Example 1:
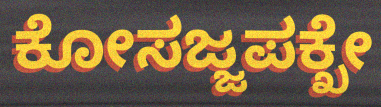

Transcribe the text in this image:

ಕೋಸಜ್ಜಪಕ್ಖೇ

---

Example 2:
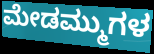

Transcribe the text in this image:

ಮೇಡಮ್ಮುಗಳ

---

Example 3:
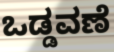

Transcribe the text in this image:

ಒಡ್ಡವಣೆ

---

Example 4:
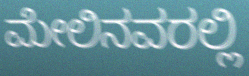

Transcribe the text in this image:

ಮೇಲಿನವರಲ್ಲಿ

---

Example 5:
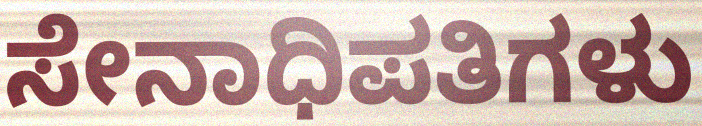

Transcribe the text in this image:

ಸೇನಾಧಿಪತಿಗಳು